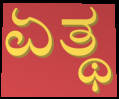
ಏತ್ಥ